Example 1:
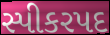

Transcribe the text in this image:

સ્પીકરપદ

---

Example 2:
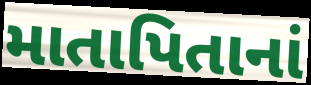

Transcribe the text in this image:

માતાપિતાનાં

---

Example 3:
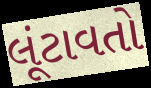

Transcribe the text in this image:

લૂંટાવતો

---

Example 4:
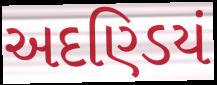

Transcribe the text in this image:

અદણ્ડિયં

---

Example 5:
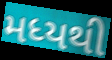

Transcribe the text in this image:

મધ્યથી